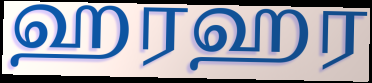
ஹரஹர